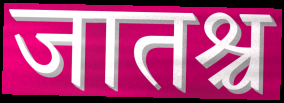
जातश्च